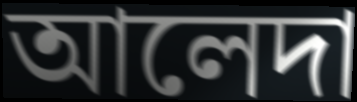
আলেদা